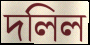
দলিল